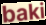
baki